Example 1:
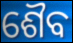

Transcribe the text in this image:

ଶୈବ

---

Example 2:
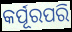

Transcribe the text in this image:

କର୍ପୂରପରି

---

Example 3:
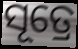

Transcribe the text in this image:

ସୂତ୍ରେ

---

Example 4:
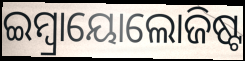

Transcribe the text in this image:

ଇମ୍ବ୍ରାୟୋଲୋଜିଷ୍ଟ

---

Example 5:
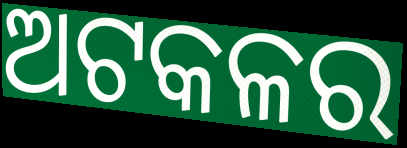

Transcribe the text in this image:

ଅଟକଳର